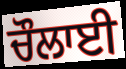
ਚੌਲਾਈ